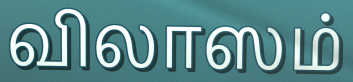
விலாஸம்